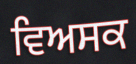
ਵਿਅਸਕ